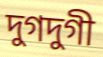
দুগদুগী